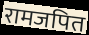
रामजपित